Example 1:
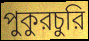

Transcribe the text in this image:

পুকুরচুরি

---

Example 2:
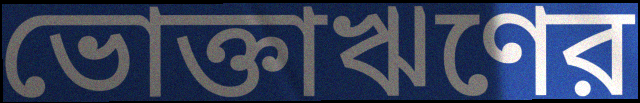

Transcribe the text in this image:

ভোক্তাঋণের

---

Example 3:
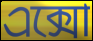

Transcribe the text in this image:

এক্সো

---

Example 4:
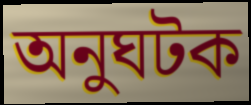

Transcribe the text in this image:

অনুঘটক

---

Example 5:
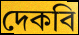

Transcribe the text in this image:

দেকবি